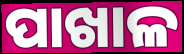
ପାଖାଳ